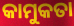
କାମୁକତା